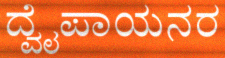
ದ್ವೈಪಾಯನರ